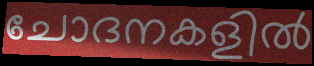
ചോദനകളിൽ